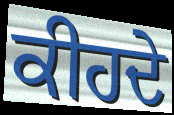
ਕੀਹਦੇ